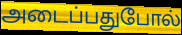
அடைப்பதுபோல்